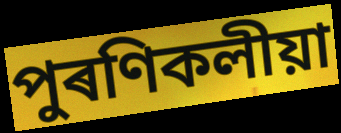
পুৰণিকলীয়া